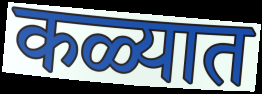
कळ्यात